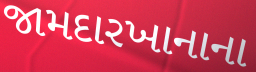
જામદારખાનાના